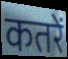
कतरें